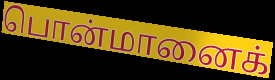
பொன்மானைக்